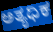
ಅತ್ಯಧಿಕ